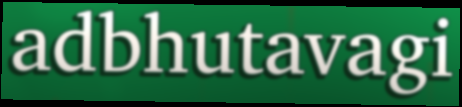
adbhutavagi